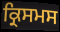
ਕ੍ਰਿਸਮਸ